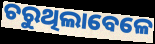
ଚରୁଥିଲାବେଳେ